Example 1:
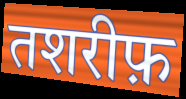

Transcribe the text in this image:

तशरीफ़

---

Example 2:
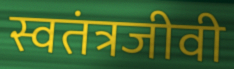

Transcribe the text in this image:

स्वतंत्रजीवी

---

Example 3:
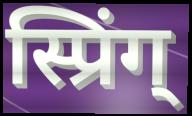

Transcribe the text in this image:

स्प्रिंग्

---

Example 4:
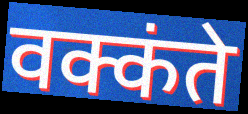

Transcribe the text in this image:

वक्कंते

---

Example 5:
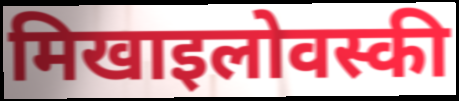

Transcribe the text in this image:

मिखाइलोवस्की